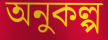
অনুকল্প